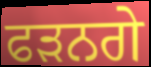
ਫੜਨਗੇ